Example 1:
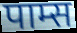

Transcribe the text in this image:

पाम्स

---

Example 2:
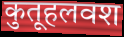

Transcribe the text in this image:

कुतूहलवश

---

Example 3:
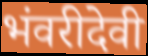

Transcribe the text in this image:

भंवरीदेवी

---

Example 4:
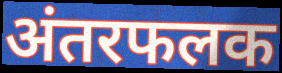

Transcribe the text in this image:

अंतरफलक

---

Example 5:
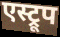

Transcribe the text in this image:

एस्ट्रूप